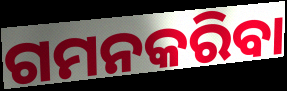
ଗମନକରିବା